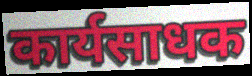
कार्यसाधक